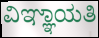
ವಿಞ್ಞಾಯತಿ